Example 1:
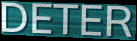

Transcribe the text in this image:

DETER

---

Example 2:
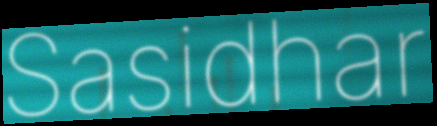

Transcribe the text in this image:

Sasidhar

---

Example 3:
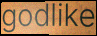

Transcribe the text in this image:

godlike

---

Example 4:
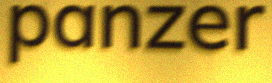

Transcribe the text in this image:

panzer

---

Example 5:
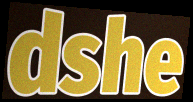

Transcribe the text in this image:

dshe